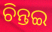
ଚିନ୍ତଇ